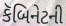
કૅબિનેટની